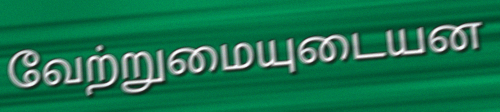
வேற்றுமையுடையன